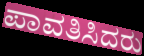
ಪಾವತಿಸಿದರು